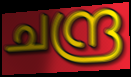
ചന്ദ്ര